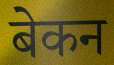
बेकन